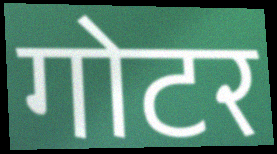
गोटर